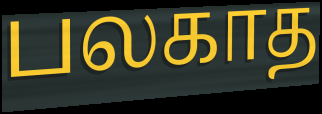
பலகாத